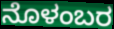
ನೊಳಂಬರ